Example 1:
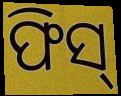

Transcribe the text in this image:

ଫିସ୍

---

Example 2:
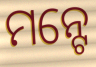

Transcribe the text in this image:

ମନ୍ଟେ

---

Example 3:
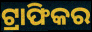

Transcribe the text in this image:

ଟ୍ରାଫିକର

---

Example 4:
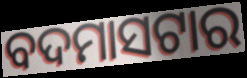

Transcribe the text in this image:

ବଦମାସଟାର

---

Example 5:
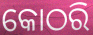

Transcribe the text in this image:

କୋଠରି